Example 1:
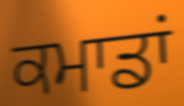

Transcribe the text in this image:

ਕਮਾਡਾਂ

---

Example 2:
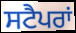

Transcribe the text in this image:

ਸਟੈਪਰਾਂ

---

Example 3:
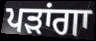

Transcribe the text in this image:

ਪੜਾਂਗਾ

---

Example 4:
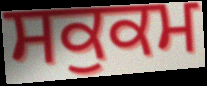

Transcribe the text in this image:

ਸਕੁਕਮ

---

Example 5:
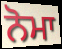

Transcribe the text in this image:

ਨੋਮਾ